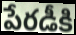
పేరడీకి